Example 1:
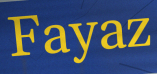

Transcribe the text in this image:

Fayaz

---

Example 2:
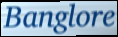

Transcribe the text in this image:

Banglore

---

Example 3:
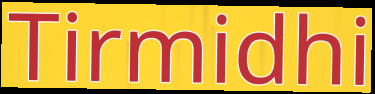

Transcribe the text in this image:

Tirmidhi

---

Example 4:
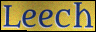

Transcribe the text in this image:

Leech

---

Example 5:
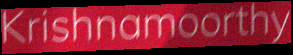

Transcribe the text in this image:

Krishnamoorthy